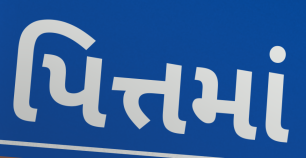
પિત્તમાં